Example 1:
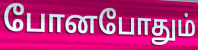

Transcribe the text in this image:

போனபோதும்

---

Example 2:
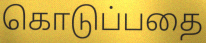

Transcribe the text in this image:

கொடுப்பதை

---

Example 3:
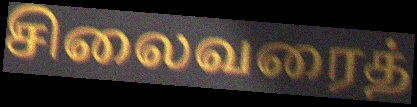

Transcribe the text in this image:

சிலைவரைத்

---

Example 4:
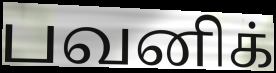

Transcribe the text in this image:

பவனிக்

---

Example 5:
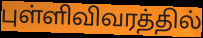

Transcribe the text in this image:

புள்ளிவிவரத்தில்